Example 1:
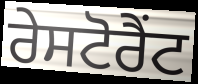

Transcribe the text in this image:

ਰੇਸਟੋਰੈਂਟ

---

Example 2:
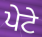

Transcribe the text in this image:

ਪੇਟੇ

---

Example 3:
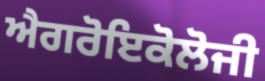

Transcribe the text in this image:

ਐਗਰੋਇਕੋਲੋਜੀ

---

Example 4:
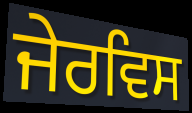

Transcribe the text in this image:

ਜੇਰਵਿਸ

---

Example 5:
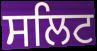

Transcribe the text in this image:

ਸਲਿਟ